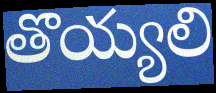
తొయ్యలి